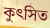
কুৎসিত